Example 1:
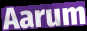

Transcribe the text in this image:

Aarum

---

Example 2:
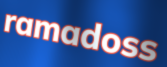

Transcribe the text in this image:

ramadoss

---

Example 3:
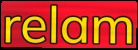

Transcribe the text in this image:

relam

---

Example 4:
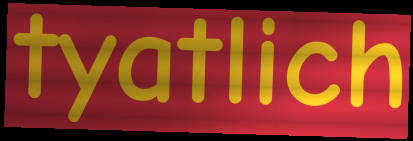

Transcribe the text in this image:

tyatlich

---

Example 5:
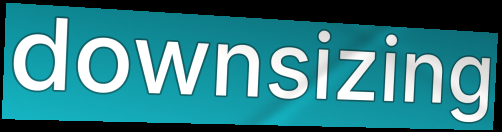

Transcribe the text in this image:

downsizing